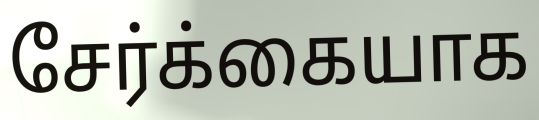
சேர்க்கையாக